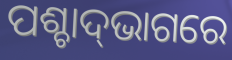
ପଶ୍ଚାଦ୍‌ଭାଗରେ